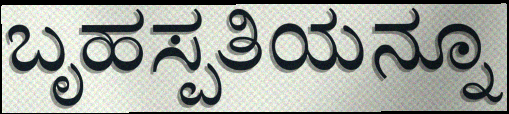
ಬೃಹಸ್ಪತಿಯನ್ನೂ